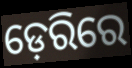
ଡ଼େରିରେ